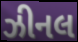
ઝીનલ